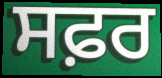
ਸਫ਼ਰ